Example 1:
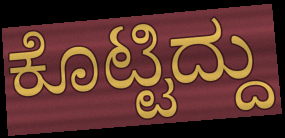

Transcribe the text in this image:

ಕೊಟ್ಟಿದ್ದು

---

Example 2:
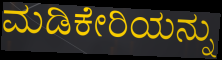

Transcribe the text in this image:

ಮಡಿಕೇರಿಯನ್ನು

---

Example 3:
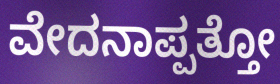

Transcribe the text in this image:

ವೇದನಾಪ್ಪತ್ತೋ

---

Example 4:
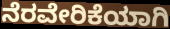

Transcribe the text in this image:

ನೆರವೇರಿಕೆಯಾಗಿ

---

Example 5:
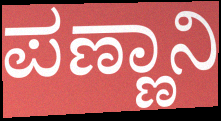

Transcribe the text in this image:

ಪಣ್ಣಾನಿ